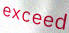
exceed